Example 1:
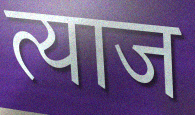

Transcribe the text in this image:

त्याज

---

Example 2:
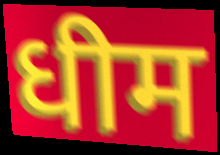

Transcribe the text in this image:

धीम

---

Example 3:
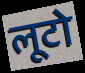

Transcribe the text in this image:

लूटो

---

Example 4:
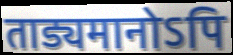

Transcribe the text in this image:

ताड्यमानोऽपि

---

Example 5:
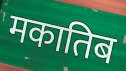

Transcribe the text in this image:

मकातिब